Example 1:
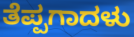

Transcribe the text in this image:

ತೆಪ್ಪಗಾದಳು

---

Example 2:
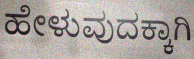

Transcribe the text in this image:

ಹೇಳುವುದಕ್ಕಾಗಿ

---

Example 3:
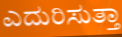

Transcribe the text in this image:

ಎದುರಿಸುತ್ತಾ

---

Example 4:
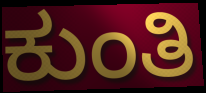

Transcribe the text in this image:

ಕುಂತಿ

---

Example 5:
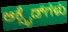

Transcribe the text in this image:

ಆಕ್ಸೈಡ್‌ಗಳು